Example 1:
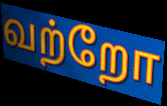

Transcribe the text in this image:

வற்றோ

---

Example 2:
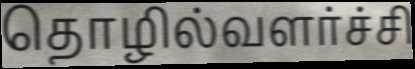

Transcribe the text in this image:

தொழில்வளர்ச்சி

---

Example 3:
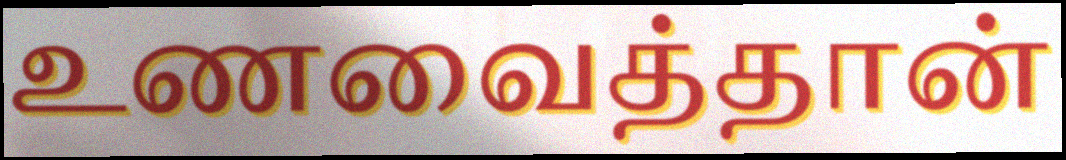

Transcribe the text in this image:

உணவைத்தான்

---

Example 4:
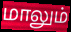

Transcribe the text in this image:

மாலும்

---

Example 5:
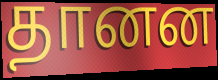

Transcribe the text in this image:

தானன